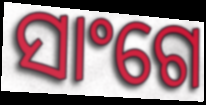
ସାଂଗେ